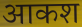
आकश